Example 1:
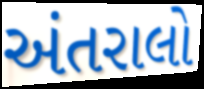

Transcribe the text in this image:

અંતરાલો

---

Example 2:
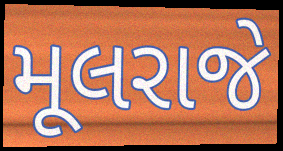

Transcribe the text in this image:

મૂલરાજે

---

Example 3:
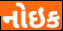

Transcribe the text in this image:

નોઇક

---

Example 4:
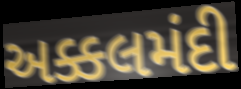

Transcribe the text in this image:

અક્કલમંદી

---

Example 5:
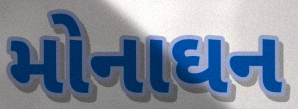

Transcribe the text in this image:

મોનાઘન